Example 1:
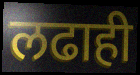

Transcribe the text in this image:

लढाही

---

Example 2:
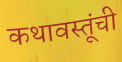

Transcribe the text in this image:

कथावस्तूंची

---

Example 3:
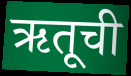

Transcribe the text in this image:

ऋतूची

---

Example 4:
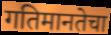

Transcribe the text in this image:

गतिमानतेचा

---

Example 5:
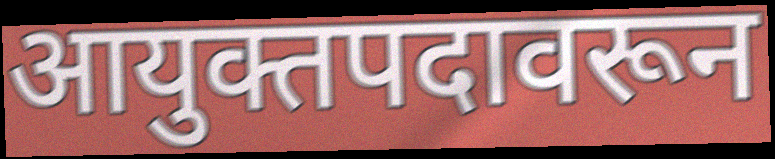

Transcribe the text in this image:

आयुक्तपदावरून